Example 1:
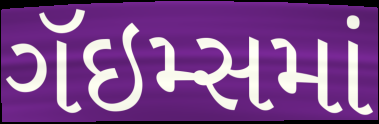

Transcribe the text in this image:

ગૅઇમ્સમાં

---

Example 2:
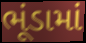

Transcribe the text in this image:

ભૂંડામાં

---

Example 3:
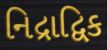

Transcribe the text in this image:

નિદ્રાદ્વિક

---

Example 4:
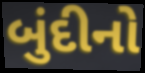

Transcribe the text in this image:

બુંદીનો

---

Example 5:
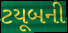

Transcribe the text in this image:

ટયૂબની